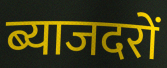
ब्याजदरों